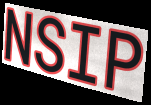
NSIP